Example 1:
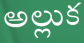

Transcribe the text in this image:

అల్లుక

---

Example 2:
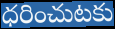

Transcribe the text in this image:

ధరించుటకు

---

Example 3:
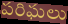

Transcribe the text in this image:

పరిఘలు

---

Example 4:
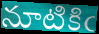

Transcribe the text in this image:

నూటికిఁ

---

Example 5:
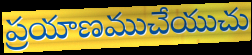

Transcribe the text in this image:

ప్రయాణముచేయుచు